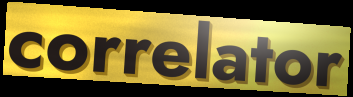
correlator